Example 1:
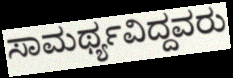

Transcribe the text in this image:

ಸಾಮರ್ಥ್ಯವಿದ್ದವರು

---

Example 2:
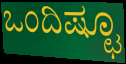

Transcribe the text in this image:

ಒಂದಿಷ್ಟೂ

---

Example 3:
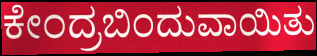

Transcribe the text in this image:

ಕೇಂದ್ರಬಿಂದುವಾಯಿತು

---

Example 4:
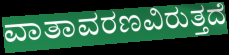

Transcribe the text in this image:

ವಾತಾವರಣವಿರುತ್ತದೆ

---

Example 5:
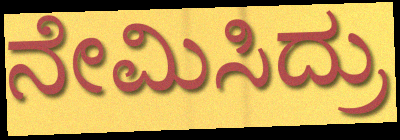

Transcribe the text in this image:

ನೇಮಿಸಿದ್ರು